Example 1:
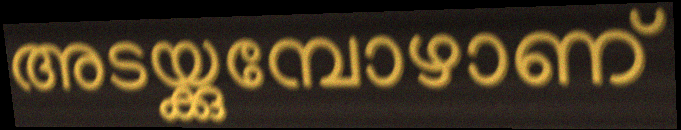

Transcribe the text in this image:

അടയ്ക്കുമ്പോഴാണ്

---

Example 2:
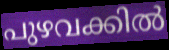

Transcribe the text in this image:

പുഴവക്കിൽ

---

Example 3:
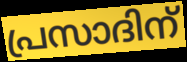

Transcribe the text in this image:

പ്രസാദിന്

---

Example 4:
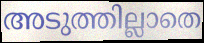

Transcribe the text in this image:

അടുത്തില്ലാതെ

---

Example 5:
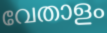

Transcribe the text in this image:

വേതാളം